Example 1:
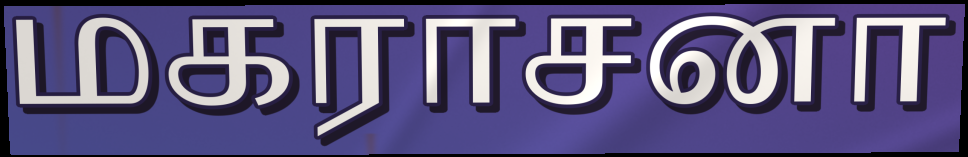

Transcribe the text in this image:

மகராசனா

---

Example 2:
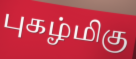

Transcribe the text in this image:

புகழ்மிகு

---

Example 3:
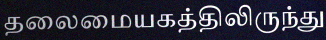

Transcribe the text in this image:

தலைமையகத்திலிருந்து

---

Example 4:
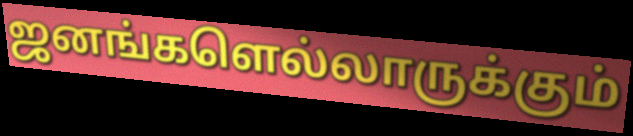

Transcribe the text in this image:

ஜனங்களெல்லாருக்கும்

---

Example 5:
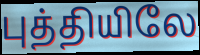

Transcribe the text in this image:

புத்தியிலே